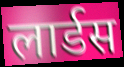
लार्डस